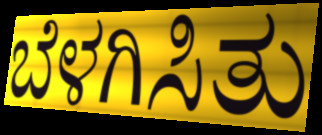
ಬೆಳಗಿಸಿತು